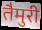
तैमुरी